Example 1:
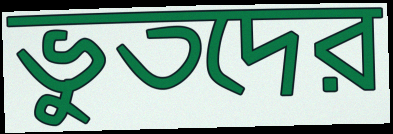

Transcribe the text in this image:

ভুতদের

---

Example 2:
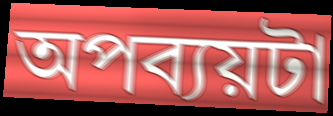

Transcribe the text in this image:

অপব্যয়টা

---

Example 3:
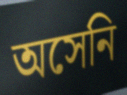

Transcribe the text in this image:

অসেনি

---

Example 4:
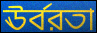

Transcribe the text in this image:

ঊর্বরতা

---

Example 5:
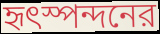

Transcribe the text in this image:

হৃৎস্পন্দনের